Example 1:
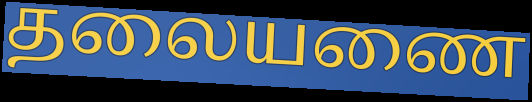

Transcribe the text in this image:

தலையணை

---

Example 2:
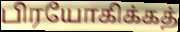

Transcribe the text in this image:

பிரயோகிக்கத்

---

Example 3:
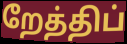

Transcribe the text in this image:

றேத்திப்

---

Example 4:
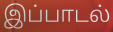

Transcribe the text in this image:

இப்பாடல்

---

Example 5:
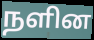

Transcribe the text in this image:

நளின